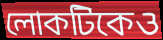
লোকটিকেও